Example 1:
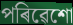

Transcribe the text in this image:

পৰিৱেশো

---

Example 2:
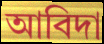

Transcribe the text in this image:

আবিদা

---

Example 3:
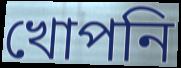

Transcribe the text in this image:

খোপনি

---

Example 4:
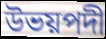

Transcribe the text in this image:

উভয়পদী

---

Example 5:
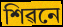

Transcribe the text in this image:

শিৱনে